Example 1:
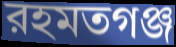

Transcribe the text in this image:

রহমতগঞ্জ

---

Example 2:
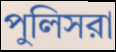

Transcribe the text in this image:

পুলিসরা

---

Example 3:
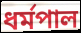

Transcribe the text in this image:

ধর্মপাল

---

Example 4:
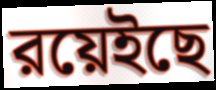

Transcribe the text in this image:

রয়েইছে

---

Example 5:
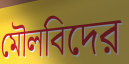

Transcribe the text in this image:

মৌলবিদের